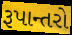
રૂપાન્તરો